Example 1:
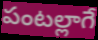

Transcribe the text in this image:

పంటల్లాగే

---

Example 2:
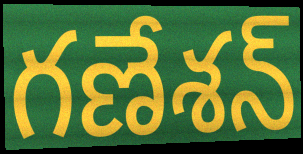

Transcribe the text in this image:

గణేశన్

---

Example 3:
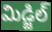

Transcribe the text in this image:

మిడ్జిల్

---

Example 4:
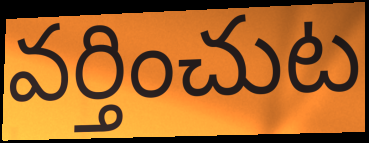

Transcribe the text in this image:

వర్తించుట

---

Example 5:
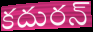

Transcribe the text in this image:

కదురన్